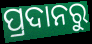
ପ୍ରଦାନରୁ